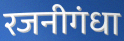
रजनीगंधा